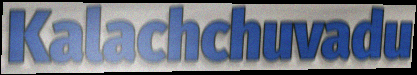
Kalachchuvadu